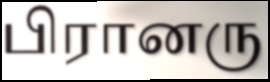
பிரானரு